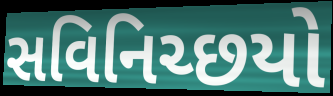
સવિનિચ્છયો